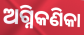
ଅଗ୍ନିକଣିକା